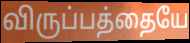
விருப்பத்தையே